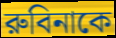
রুবিনাকে